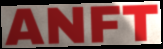
ANFT